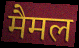
मैमल